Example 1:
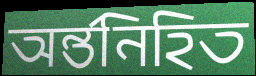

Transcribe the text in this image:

অর্ন্তনিহিত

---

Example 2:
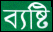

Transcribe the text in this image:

ব্যষ্টি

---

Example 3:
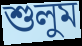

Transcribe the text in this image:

শুলুম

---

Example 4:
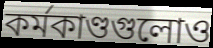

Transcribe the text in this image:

কর্মকাণ্ডগুলোও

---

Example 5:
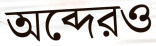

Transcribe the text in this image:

অব্দেরও